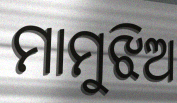
ମାମୁଝିଅ